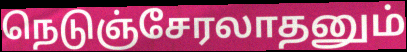
நெடுஞ்சேரலாதனும்